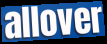
allover